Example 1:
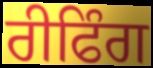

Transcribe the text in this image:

ਰੀਫਿੰਗ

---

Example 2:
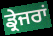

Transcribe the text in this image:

ਡ੍ਰੇਜਰਾਂ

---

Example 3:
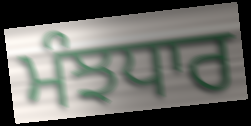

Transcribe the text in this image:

ਮੰਝਧਾਰ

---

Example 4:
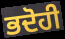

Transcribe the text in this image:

ਭਦੋਹੀ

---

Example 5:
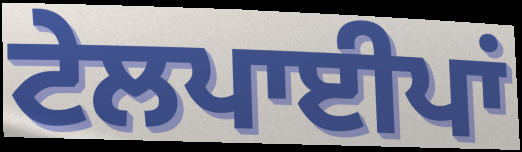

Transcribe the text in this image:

ਟੇਲਪਾਈਪਾਂ